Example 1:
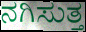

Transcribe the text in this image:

ನಗಿಸುತ್ತ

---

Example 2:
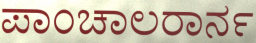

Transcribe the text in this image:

ಪಾಂಚಾಲರಾರ್ನ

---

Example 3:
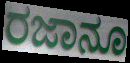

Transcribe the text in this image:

ರಜಾನೂ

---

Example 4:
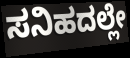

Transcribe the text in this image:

ಸನಿಹದಲ್ಲೇ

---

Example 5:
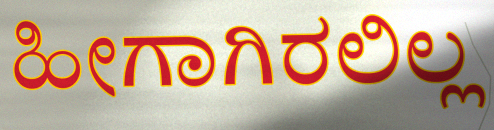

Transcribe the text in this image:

ಹೀಗಾಗಿರಲಿಲ್ಲ